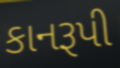
કાનરૂપી